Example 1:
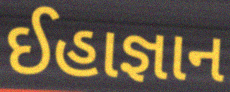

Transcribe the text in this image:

ઈહાજ્ઞાન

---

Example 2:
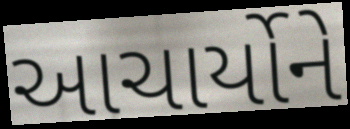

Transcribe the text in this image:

આચાર્યોને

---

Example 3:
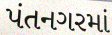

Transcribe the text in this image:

પંતનગરમાં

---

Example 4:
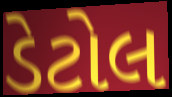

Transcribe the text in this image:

ડેટોલ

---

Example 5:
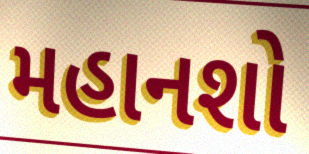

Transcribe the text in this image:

મહાનશો